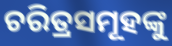
ଚରିତ୍ରସମୂହଙ୍କୁ